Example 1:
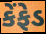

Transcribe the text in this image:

કેંફેડ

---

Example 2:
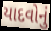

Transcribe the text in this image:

યાદવોનું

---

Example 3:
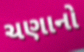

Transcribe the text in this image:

ચણાનો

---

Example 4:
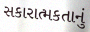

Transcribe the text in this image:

સકારાત્મકતાનું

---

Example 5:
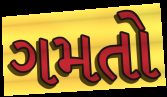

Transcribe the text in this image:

ગમતો